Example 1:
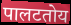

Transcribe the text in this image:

पालटतोय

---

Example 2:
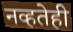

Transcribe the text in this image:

नव्हतेही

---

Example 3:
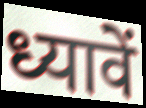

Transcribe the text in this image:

ध्यावें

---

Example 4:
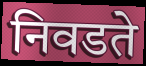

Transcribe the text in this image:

निवडते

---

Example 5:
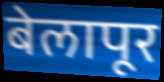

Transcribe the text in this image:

बेलापूर